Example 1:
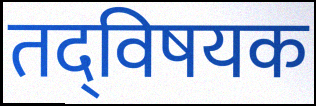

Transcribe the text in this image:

तद्‌विषयक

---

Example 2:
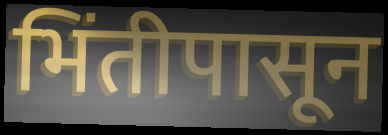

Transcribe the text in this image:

भिंतीपासून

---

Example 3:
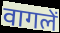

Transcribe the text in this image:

वागलें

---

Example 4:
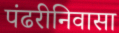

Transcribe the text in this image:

पंढरीनिवासा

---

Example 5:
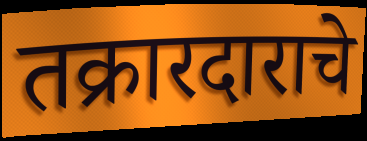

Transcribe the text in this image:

तक्रारदाराचे